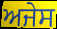
ਅਜੇਸ